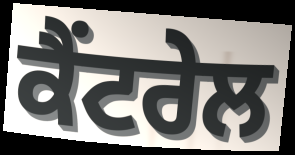
ਕੈਂਟਰੇਲ